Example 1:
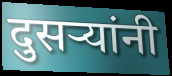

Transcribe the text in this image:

दुसर्‍यांनी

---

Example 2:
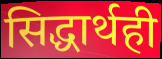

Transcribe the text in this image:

सिद्धार्थही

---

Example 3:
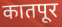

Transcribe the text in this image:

कातपूर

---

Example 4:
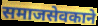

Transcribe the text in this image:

समाजसेवकाने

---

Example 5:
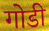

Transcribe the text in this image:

गोडी